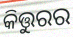
କିତ୍ତୁରର